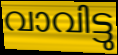
വാവിട്ടു